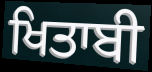
ਖਿਤਾਬੀ